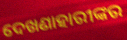
ଦେଖଣାହାରୀଙ୍କର